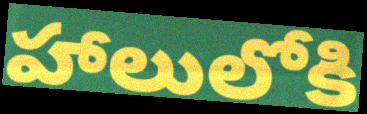
హాలులోకి